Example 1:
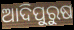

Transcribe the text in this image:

ଆଦିପୁରୁଷ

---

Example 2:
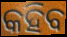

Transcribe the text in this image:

କହିବ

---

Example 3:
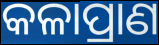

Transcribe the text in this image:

କଳାପ୍ରାଣ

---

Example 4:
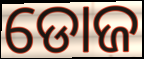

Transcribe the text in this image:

ଡୋଜ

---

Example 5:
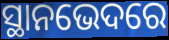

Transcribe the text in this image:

ସ୍ଥାନଭେଦରେ